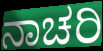
ನಾಚರಿ